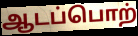
ஆடப்பொற்